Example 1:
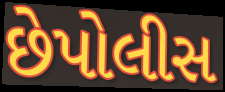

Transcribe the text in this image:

છેપોલીસ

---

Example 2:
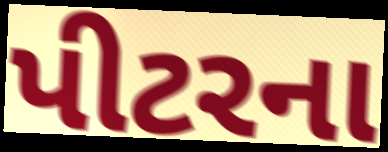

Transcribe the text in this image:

પીટરના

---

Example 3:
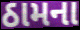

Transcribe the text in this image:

ઠામના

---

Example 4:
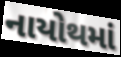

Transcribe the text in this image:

નાયોથમાં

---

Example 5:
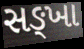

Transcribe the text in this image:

સઙ્ખા